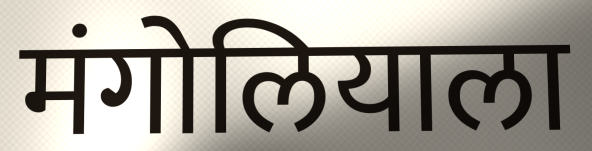
मंगोलियाला